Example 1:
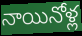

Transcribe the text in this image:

నాయినోళ్ల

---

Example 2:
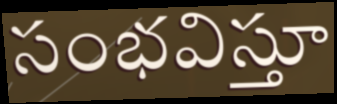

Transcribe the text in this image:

సంభవిస్తూ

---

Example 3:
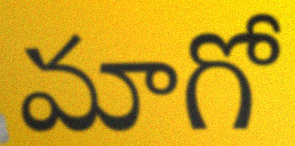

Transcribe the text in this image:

మాగో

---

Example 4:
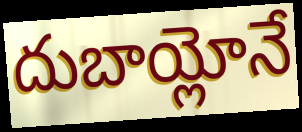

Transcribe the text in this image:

దుబాయ్లోనే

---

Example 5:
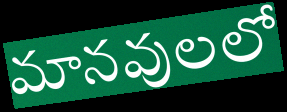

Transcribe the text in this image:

మానవులలో